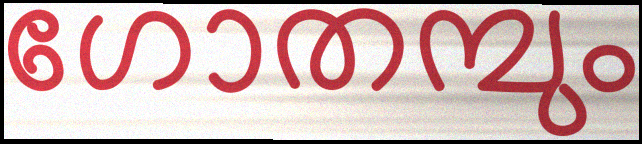
ഗോതമ്പും